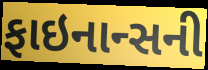
ફાઇનાન્સની